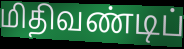
மிதிவண்டிப்